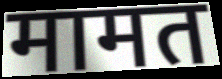
मामत